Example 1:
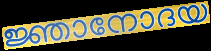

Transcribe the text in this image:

ജ്ഞാനോദയ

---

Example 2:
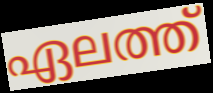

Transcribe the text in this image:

ഏലത്ത്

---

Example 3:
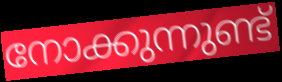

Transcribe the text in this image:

നോക്കുന്നുണ്ട്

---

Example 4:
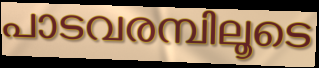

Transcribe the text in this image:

പാടവരമ്പിലൂടെ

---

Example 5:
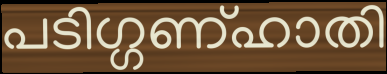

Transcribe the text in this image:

പടിഗ്ഗണ്ഹാതി